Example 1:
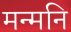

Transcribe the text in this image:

मन्मनि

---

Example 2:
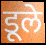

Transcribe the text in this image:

डूले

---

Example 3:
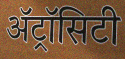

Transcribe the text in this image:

ॲट्रॉसिटी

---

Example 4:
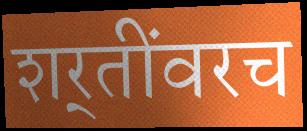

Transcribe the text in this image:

शर्तींवरच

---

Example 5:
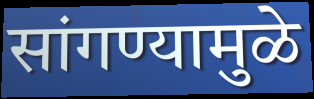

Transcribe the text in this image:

सांगण्यामुळे